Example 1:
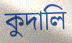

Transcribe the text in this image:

কুদালি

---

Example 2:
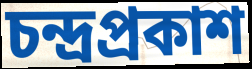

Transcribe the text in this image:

চন্দ্ৰপ্ৰকাশ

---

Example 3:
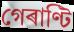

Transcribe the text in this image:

গেৰাণ্টি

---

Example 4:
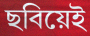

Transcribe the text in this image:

ছবিয়েই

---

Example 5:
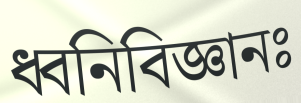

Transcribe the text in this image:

ধ্বনিবিজ্ঞানঃ